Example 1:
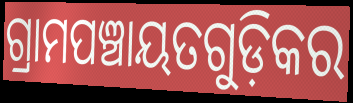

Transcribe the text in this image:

ଗ୍ରାମପଞ୍ଚାୟତଗୁଡ଼ିକର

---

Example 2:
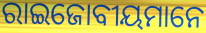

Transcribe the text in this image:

ରାଇଜୋବୀୟମାନେ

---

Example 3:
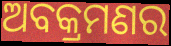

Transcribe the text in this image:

ଅବକ୍ରମଣର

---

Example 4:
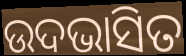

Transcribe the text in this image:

ଉଦଭାସିତ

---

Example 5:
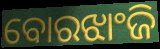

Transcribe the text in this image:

ବୋରଝାଂଜି